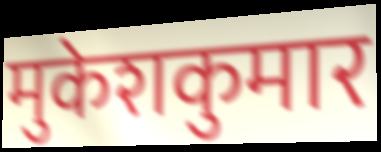
मुकेशकुमार